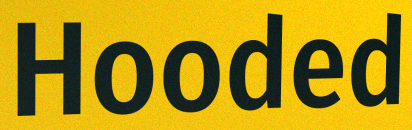
Hooded